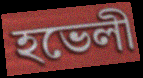
হভেলী